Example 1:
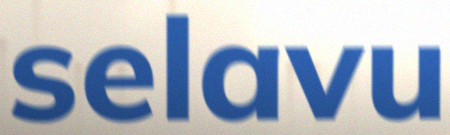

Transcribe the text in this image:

selavu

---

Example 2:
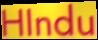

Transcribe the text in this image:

HIndu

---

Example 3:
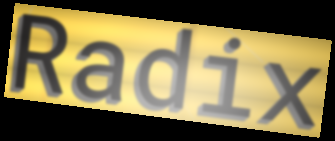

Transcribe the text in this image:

Radix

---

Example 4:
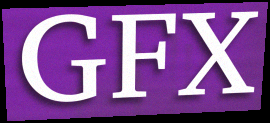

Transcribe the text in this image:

GFX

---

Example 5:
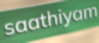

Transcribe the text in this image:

saathiyam